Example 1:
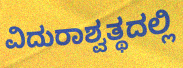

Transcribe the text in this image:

ವಿದುರಾಶ್ವತ್ಥದಲ್ಲಿ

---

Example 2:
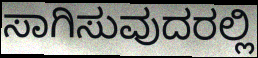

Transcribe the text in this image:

ಸಾಗಿಸುವುದರಲ್ಲಿ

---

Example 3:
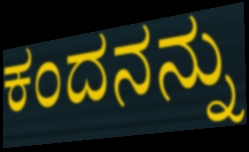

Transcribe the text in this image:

ಕಂದನನ್ನು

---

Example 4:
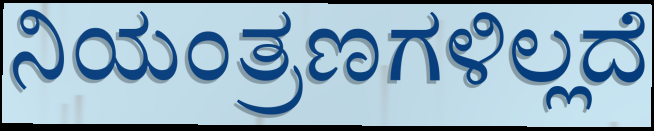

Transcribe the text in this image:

ನಿಯಂತ್ರಣಗಳಿಲ್ಲದೆ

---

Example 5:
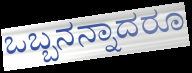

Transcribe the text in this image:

ಒಬ್ಬನನ್ನಾದರೂ